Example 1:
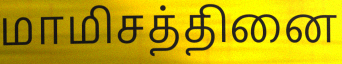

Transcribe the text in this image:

மாமிசத்தினை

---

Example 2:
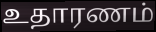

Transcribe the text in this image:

உதாரணம்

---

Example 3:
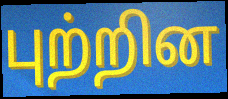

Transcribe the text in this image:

புற்றின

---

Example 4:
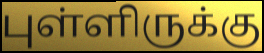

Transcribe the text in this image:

புள்ளிருக்கு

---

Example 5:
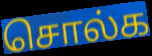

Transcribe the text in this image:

சொல்க